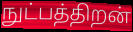
நுட்பத்திறன்